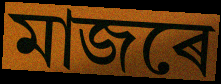
মাজৰে